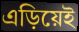
এড়িয়েই